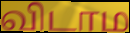
விடாம